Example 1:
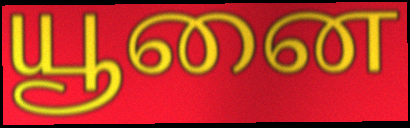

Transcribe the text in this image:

யூனை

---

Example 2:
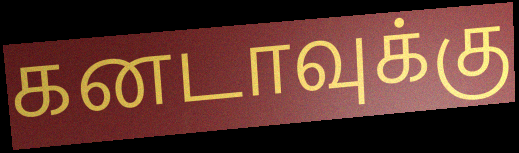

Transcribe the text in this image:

கனடாவுக்கு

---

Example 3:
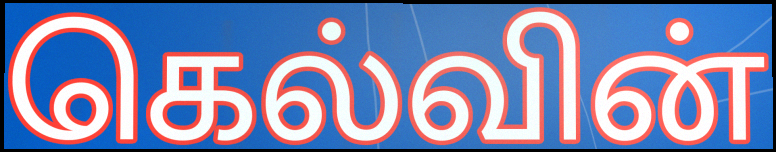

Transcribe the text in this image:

கெல்வின்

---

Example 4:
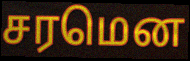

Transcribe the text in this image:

சரமென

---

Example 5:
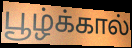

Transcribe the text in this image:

பூழ்க்கால்